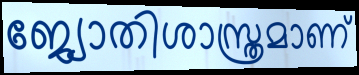
ജ്യോതിശാസ്ത്രമാണ്